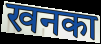
खनका